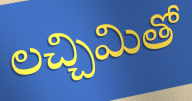
లచ్చిమితో